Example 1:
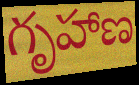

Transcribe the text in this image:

గృహాణ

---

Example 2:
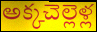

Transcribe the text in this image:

అక్కచెల్లెళ్ల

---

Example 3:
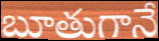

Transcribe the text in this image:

బూతుగానే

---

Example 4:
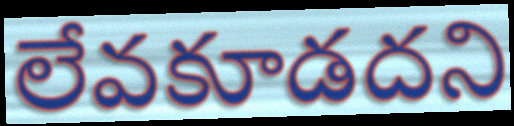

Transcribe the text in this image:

లేవకూడదని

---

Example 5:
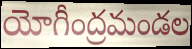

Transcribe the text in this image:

యోగీంద్రమండల